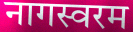
नागस्वरम